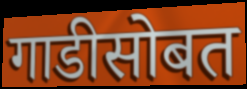
गाडीसोबत